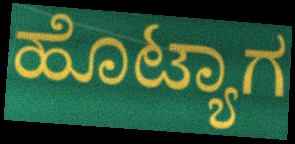
ಹೊಟ್ಯಾಗ